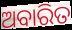
ଅବାରିତ